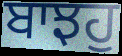
ਬਾਝਹੁ